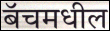
बॅचमधील